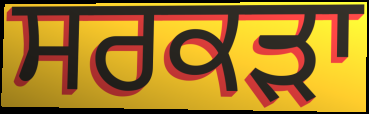
ਸਰਕੜਾ